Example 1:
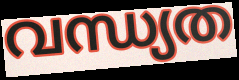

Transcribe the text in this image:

വന്ധ്യത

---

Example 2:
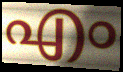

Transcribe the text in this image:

എം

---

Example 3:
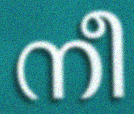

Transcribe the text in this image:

നീ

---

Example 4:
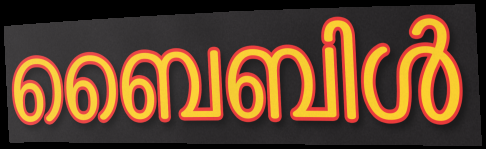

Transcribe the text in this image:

ബൈബിൾ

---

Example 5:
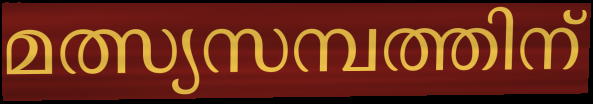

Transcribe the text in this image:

മത്സ്യസമ്പത്തിന്